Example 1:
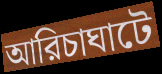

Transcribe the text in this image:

আরিচাঘাটে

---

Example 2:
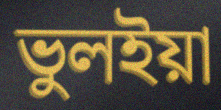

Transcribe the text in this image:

ভুলইয়া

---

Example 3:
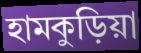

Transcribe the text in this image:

হামকুড়িয়া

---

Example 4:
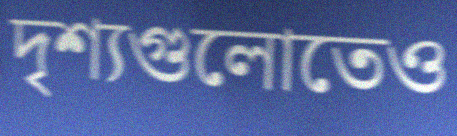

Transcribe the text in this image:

দৃশ্যগুলোতেও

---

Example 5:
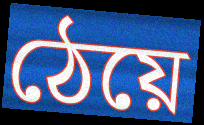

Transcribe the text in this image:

ঠেয়ে